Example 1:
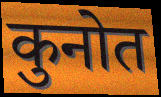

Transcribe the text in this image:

कुनोत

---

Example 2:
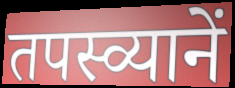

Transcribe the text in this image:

तपस्व्यानें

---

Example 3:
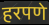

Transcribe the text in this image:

हरपणे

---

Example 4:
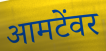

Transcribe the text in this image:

आमटेंवर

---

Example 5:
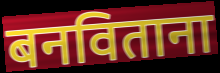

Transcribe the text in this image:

बनविताना